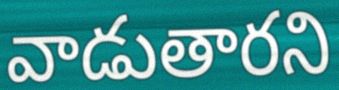
వాడుతారని